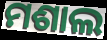
ମଶାଲ